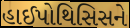
હાઈપોથિસિસને